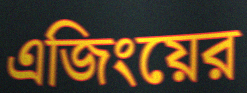
এজিংয়ের